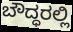
ಬೌದ್ಧರಲ್ಲಿ